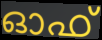
ഓഫ്